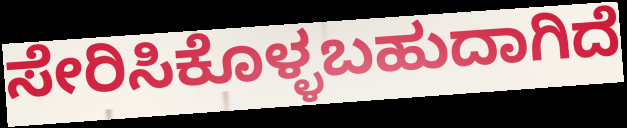
ಸೇರಿಸಿಕೊಳ್ಳಬಹುದಾಗಿದೆ